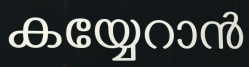
കയ്യേറാൻ